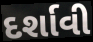
દર્શાવી